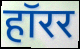
हॉरर